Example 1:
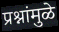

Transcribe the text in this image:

प्रश्नांमुळे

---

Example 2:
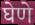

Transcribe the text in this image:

घेणे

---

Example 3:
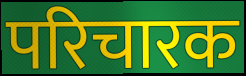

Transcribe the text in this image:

परिचारक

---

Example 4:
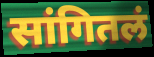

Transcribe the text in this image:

सांगितलं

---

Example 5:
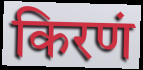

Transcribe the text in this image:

किरणं